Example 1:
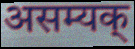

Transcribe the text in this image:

असम्यक्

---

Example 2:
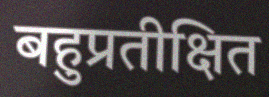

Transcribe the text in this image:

बहुप्रतीक्षित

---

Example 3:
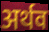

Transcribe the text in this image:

अर्थव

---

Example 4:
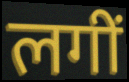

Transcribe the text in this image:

लगीं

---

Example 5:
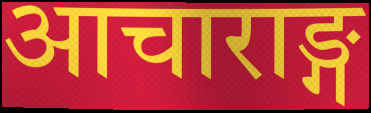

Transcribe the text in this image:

आचाराङ्ग